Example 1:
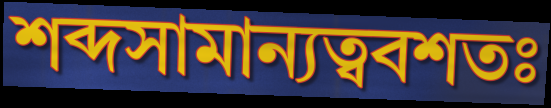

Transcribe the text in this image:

শব্দসামান্যত্ববশতঃ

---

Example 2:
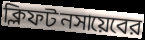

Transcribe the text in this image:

ক্লিফটনসায়েবের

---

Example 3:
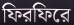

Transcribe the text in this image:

ফিরফিরে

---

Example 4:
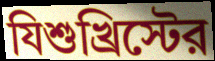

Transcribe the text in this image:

যিশুখ্রিস্টের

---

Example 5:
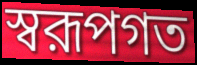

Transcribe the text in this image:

স্বরূপগত